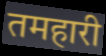
तमहारी